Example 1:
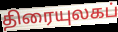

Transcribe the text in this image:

திரையுலகப்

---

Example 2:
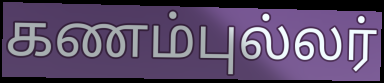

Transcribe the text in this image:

கணம்புல்லர்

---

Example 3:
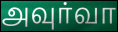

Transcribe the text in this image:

அவுர்வா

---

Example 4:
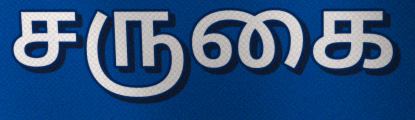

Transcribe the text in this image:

சருகை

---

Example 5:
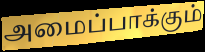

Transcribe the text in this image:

அமைப்பாக்கும்